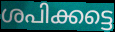
ശപിക്കട്ടെ